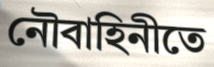
নৌবাহিনীতে